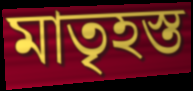
মাতৃহস্ত